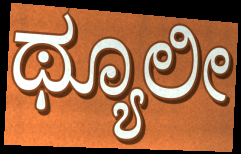
ಥ್ಯೂಲೀ